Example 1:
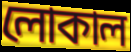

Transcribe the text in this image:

লোকাল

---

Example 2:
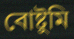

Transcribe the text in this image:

বোষ্টুমি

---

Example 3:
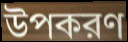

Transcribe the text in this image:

উপকরণ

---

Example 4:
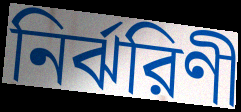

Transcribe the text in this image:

নির্ঝরিণী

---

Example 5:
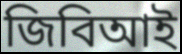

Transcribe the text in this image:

জিবিআই